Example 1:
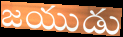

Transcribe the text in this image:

జయుడు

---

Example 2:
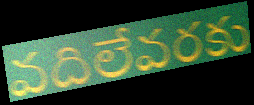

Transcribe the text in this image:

వదిలేవరకు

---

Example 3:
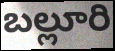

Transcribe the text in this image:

బల్లూరి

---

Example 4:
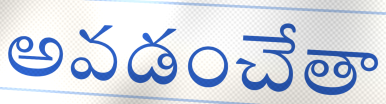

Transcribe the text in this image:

అవడంచేతా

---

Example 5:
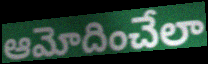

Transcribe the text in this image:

ఆమోదించేలా